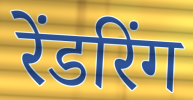
रेंडरिंग